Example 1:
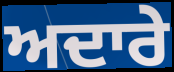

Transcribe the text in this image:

ਅਦਾਰੇ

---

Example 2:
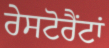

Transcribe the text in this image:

ਰੇਸਟੋਰੈਂਟਾਂ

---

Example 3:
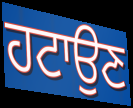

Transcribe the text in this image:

ਹਟਾਉਣ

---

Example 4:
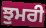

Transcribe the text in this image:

ਝੁਮਰੀ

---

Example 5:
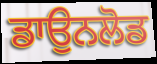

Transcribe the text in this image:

ਡਾਉਨਲੋਡ